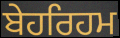
ਬੇਹਰਿਹਮ